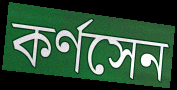
কর্ণসেন